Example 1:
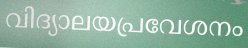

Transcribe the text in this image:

വിദ്യാലയപ്രവേശനം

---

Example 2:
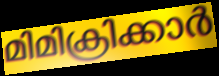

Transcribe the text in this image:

മിമിക്രിക്കാർ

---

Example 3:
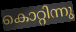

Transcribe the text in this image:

കൊറ്റിന്നു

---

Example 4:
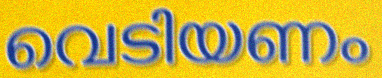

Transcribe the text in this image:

വെടിയണം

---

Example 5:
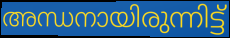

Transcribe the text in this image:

അന്ധനായിരുന്നിട്ട്